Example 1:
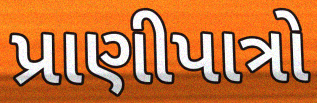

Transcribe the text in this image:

પ્રાણીપાત્રો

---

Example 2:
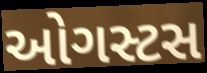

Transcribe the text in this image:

ઓગસ્ટસ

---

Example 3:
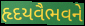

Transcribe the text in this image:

હૃદયવૈભવને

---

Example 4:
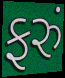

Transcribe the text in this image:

ફરું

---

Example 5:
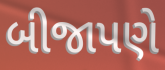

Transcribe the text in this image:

બીજાપણે